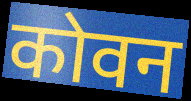
कोवन